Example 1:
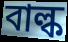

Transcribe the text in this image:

বাল্ক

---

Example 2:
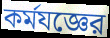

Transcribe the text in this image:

কর্মযজ্ঞের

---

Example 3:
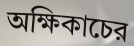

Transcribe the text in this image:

অক্ষিকাচের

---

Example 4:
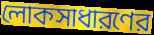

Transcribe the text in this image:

লোকসাধারণের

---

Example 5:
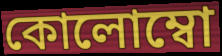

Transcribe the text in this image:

কোলোম্বো